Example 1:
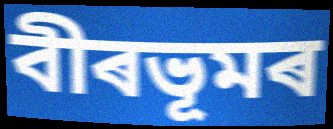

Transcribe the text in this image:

বীৰভূমৰ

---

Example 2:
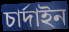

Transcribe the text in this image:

চাৰ্দাইন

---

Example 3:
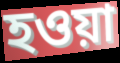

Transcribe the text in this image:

হওয়া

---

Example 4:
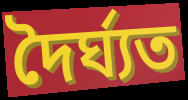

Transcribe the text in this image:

দৈৰ্ঘ্যত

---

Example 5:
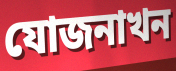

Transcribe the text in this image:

যোজনাখন